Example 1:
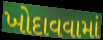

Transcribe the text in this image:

ખોદાવવામાં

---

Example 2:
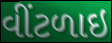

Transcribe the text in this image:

વીંટળાઇ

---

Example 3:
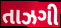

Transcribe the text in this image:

તાઝગી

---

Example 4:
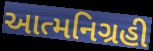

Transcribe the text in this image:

આત્મનિગ્રહી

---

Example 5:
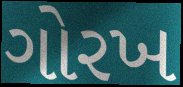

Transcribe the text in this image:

ગોરખ